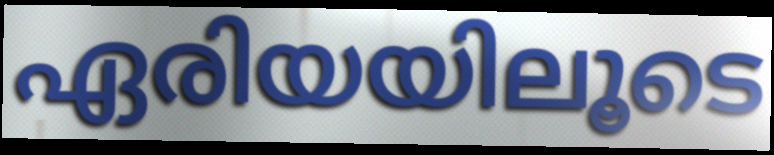
ഏരിയയിലൂടെ